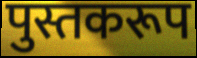
पुस्तकरूप